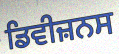
ਡਿਵੀਜ਼ਨਸ